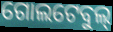
ଗୋଲଟେବୁଲ୍